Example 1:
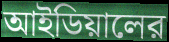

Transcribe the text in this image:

আইডিয়ালের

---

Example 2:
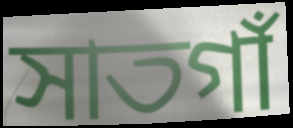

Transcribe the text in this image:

সাতগাঁ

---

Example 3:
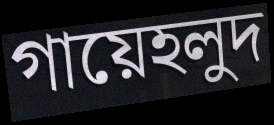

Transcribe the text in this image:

গায়েহলুদ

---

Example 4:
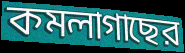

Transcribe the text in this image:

কমলাগাছের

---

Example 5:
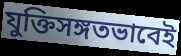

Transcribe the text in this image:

যুক্তিসঙ্গতভাবেই